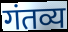
गंतव्य